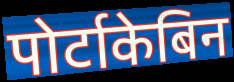
पोर्टाकेबिन